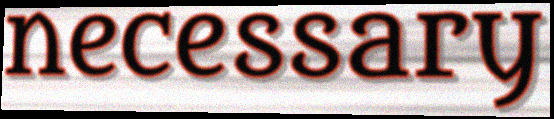
necessary